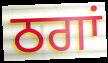
ਠਗਾਂ